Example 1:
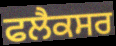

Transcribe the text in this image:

ਫਲੈਕਸਰ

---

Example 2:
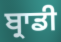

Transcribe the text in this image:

ਬ੍ਰਾਡੀ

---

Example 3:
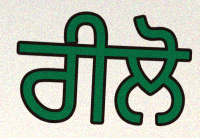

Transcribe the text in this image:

ਰੀਲੋ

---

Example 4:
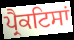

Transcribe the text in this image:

ਪ੍ਰੈਕਟਿਸਾਂ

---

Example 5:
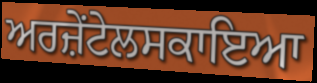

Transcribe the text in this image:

ਅਰਜ਼ੇਂਟੇਲਸਕਾਇਆ